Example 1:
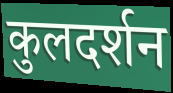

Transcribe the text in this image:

कुलदर्शन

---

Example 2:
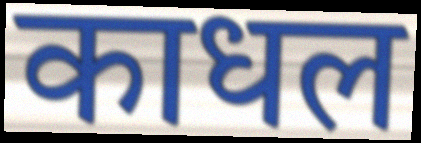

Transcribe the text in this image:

काधल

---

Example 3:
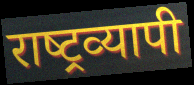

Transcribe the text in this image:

राष्‍ट्रव्‍यापी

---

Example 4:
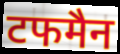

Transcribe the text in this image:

टफमैन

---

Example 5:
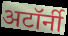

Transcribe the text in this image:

अटॉर्नी